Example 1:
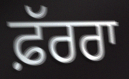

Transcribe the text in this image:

ਫ਼ੱਰਰਾ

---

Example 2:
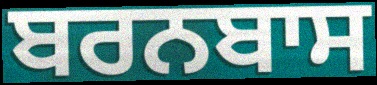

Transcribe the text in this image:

ਬਰਨਬਾਸ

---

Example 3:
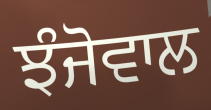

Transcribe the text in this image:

ਝੰਜੋਵਾਲ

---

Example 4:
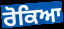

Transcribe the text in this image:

ਰੋਕਿਆ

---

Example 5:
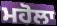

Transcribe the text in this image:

ਮਹੋਲਾ